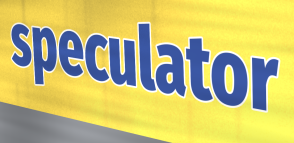
speculator